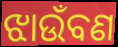
ଝାଉଁବଣ